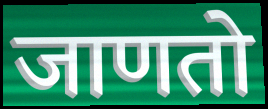
जाणतो